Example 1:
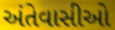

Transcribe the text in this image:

અંતેવાસીઓ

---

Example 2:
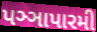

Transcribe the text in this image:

પઞ્ઞાપારમી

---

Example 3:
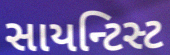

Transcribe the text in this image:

સાયન્ટિસ્ટ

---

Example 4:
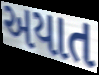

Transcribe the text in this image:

અયાત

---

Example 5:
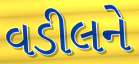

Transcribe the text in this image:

વડીલને